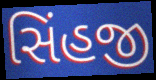
સિંહજી